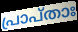
പ്രാപ്താഃ